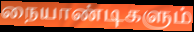
நையாண்டிகளும்